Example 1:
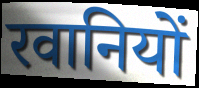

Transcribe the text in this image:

रवानियों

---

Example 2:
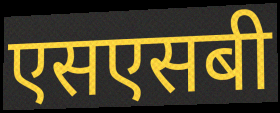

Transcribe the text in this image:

एसएसबी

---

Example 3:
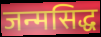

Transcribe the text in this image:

जन्मसिद्ध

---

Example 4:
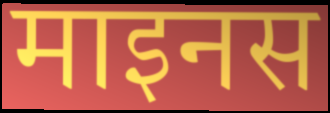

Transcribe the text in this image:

माइनस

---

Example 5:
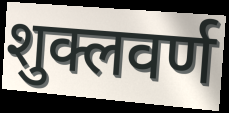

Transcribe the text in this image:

शुक्लवर्ण